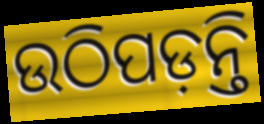
ଉଠିପଡ଼ନ୍ତି